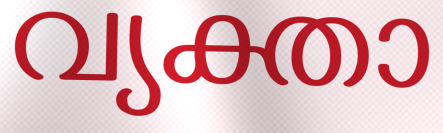
വ്യക്താ